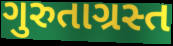
ગુરુતાગ્રસ્ત